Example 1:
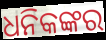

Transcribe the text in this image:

ଧନିକଙ୍କର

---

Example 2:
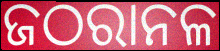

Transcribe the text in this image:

ଜଠରାନଳ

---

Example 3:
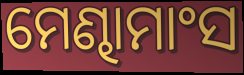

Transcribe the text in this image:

ମେଣ୍ଢାମାଂସ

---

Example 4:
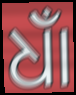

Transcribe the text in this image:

ଧାଁ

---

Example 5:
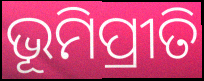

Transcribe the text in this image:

ଭୂମିପ୍ରୀତି